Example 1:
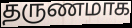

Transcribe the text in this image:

தருணமாக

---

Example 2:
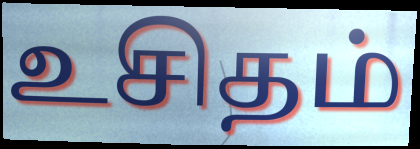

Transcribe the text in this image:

உசிதம்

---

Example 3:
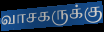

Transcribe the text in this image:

வாசகருக்கு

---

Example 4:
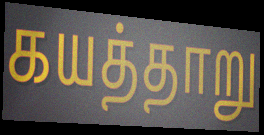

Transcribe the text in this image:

கயத்தாறு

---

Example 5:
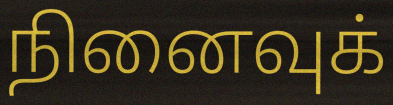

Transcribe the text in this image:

நினைவுக்